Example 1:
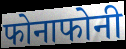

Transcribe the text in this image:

फोनाफोनी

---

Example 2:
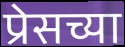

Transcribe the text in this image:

प्रेसच्या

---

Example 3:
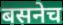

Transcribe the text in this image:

बसनेच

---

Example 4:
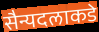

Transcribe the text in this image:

सैन्यदलाकडे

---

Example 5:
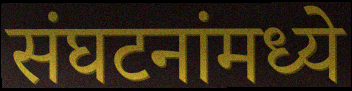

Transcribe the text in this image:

संघटनांमध्ये